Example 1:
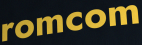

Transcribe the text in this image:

romcom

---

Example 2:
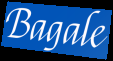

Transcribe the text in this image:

Bagale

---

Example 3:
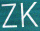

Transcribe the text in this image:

ZK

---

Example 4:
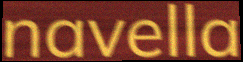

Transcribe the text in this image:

navella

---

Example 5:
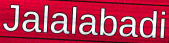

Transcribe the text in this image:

Jalalabadi